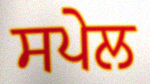
ਸਪੇਲ